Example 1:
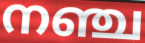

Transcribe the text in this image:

നഞ്ച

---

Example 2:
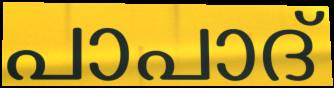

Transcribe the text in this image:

പാപാദ്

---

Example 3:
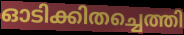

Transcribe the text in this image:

ഓടിക്കിതച്ചെത്തി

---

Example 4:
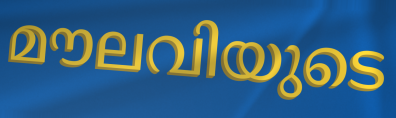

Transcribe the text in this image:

മൗലവിയുടെ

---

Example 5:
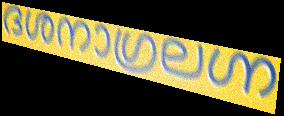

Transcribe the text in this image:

ദശനാഗ്രലഗ്ന